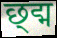
छ्द्म